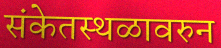
संकेतस्थळावरुन